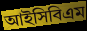
আইসিবিএম